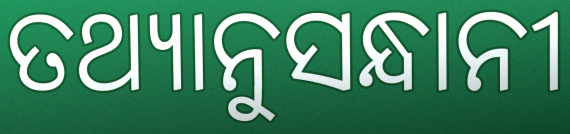
ତଥ୍ୟାନୁସନ୍ଧାନୀ